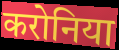
करोनिया